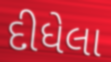
દીધેલા